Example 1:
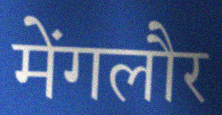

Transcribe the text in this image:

मेंगलौर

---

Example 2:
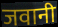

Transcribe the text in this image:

जवानी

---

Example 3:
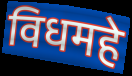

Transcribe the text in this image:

विधमहे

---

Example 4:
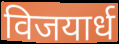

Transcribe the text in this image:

विजयार्ध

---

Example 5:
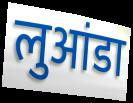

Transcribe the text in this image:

लुआंडा